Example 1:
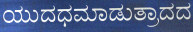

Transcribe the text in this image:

ಯುದಧಮಾಡುತ್ರಾದದ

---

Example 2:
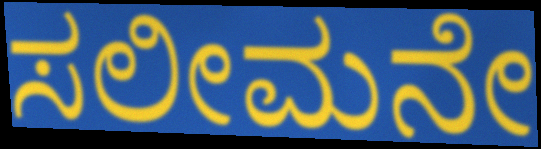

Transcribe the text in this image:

ಸಲೀಮನೇ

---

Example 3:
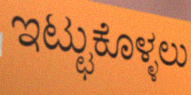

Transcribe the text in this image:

ಇಟ್ಟುಕೊಳ್ಳಲು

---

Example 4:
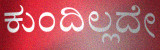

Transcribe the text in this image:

ಕುಂದಿಲ್ಲದೇ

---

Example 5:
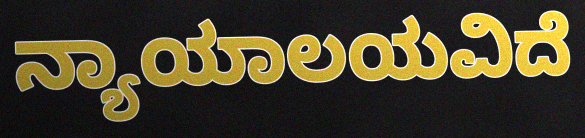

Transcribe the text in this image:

ನ್ಯಾಯಾಲಯವಿದೆ